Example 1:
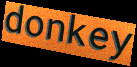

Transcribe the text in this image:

donkey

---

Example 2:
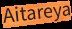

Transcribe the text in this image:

Aitareya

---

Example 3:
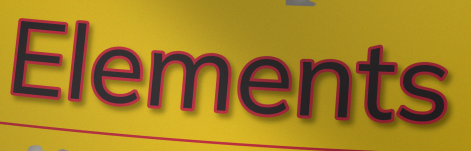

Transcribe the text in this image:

Elements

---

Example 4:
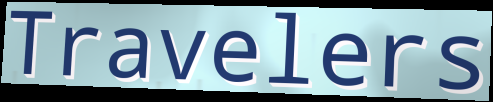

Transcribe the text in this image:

Travelers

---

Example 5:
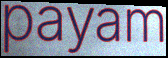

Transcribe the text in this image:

payam